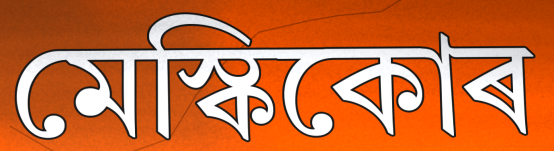
মেস্কিকোৰ